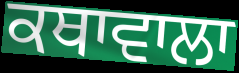
ਕਥਾਵਾਲਾ